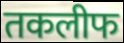
तकलीफ